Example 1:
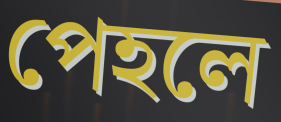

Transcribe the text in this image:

পেহলে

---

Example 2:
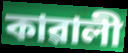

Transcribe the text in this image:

কাৱালী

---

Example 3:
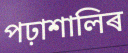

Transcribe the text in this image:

পঢ়াশালিৰ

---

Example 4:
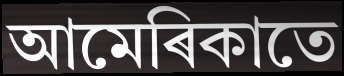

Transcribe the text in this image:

আমেৰিকাতে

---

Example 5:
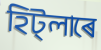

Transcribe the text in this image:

হিট্‌লাৰে